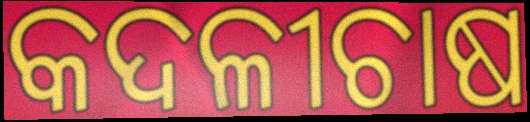
କଦଳୀଚାଷ